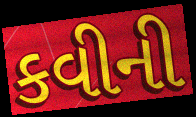
કવીની